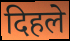
दिहले